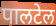
पालटेल